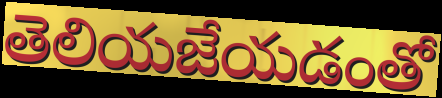
తెలియజేయడంతో